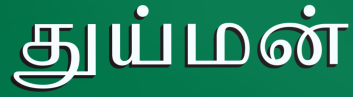
துய்மன்